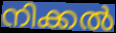
നിക്കൽ